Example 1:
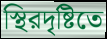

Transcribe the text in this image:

স্থিরদৃষ্টিতে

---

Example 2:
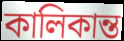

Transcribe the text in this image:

কালিকান্ত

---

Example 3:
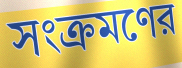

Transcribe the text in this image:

সংক্রমণের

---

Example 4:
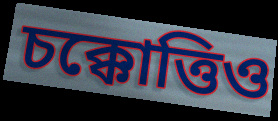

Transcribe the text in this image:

চক্কোত্তিও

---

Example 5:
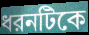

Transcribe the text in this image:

ধরনটিকে